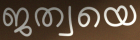
ജത്വയെ